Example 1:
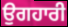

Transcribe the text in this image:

ਉਗਹਾਰੀ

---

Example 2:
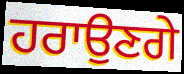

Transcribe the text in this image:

ਹਰਾਉਣਗੇ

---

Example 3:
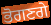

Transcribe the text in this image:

ਭੋਗਣਗੇ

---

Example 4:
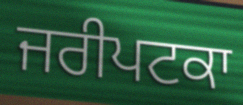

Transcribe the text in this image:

ਜਰੀਪਟਕਾ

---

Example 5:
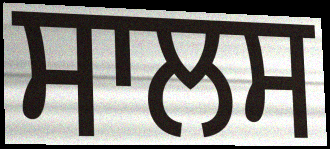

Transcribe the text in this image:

ਸਾਲਸ